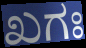
ಖಗಃ